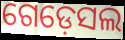
ଗେଡ଼େସଲ